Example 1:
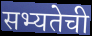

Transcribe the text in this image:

सभ्यतेची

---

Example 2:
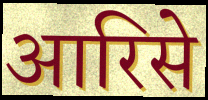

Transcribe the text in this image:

आरिसे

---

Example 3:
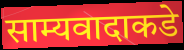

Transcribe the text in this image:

साम्यवादाकडे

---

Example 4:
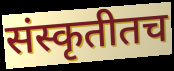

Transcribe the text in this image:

संस्कृतीतच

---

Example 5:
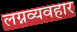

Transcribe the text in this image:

लग्नव्यवहार